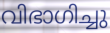
വിഭാഗിച്ചു